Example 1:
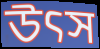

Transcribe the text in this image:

উৎস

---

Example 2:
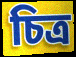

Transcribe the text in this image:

চিত্ৰ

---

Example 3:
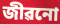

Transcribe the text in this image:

জীৱনো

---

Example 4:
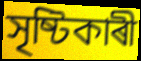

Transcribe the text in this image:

সৃষ্টিকাৰী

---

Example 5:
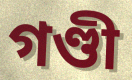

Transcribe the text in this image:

গণ্ডী